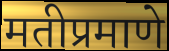
मतीप्रमाणे